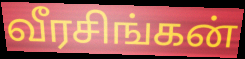
வீரசிங்கன்